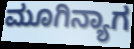
ಮೂಗಿನ್ಯಾಗ